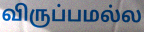
விருப்பமல்ல